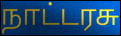
நாட்டரசு